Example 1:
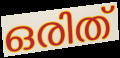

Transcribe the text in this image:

ഒരിത്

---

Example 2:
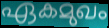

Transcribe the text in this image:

ഏകമുഖം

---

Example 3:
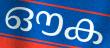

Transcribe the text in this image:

ഔക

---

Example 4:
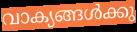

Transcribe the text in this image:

വാക്യങ്ങൾക്കു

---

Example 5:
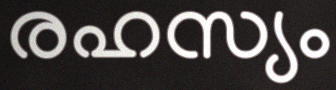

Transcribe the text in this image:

രഹസ്യം